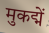
मुकद्में